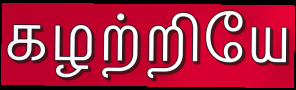
கழற்றியே